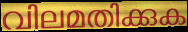
വിലമതിക്കുക